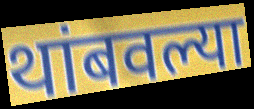
थांबवल्या